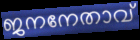
ജനനേതാവ്